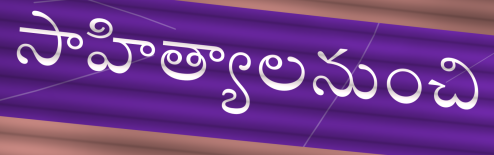
సాహిత్యాలనుంచి